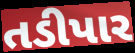
તડીપાર